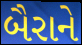
બૈરાને